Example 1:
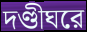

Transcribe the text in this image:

দণ্ডীঘরে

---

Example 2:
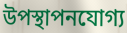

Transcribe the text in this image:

উপস্থাপনযোগ্য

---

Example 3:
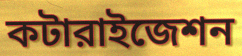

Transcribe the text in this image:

কটারাইজেশন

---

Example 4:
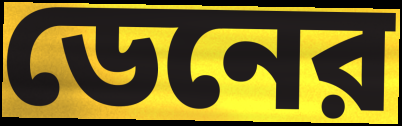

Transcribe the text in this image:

ডেনের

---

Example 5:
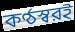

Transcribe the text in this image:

কণ্ঠস্বরই